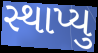
સ્થાપ્યુ